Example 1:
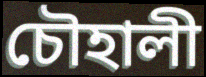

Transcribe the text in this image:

চৌহালী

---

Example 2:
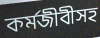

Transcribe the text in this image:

কর্মজীবীসহ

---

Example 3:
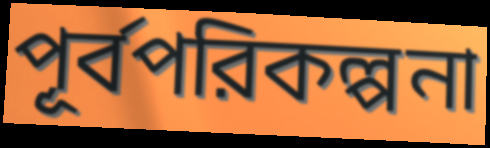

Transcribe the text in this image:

পূর্বপরিকল্পনা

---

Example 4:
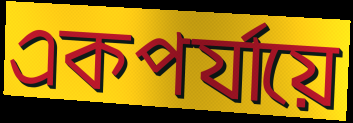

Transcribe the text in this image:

একপর্যায়ে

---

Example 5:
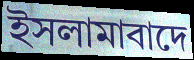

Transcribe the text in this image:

ইসলামাবাদে